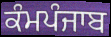
ਕੰਮਪੰਜਾਬ